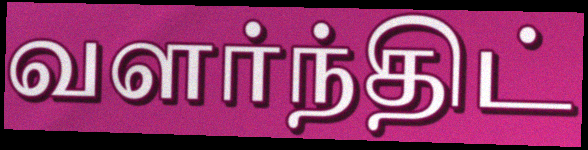
வளர்ந்திட்